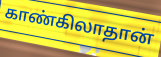
காண்கிலாதான்